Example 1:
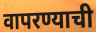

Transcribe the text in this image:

वापरण्याची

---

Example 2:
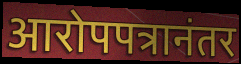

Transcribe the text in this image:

आरोपपत्रानंतर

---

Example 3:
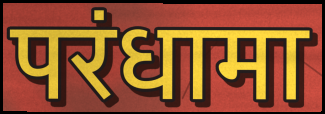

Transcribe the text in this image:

परंधामा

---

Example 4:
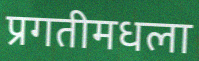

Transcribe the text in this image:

प्रगतीमधला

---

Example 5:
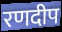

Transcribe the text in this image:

रणदीप